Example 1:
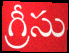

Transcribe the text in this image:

గ్రీసు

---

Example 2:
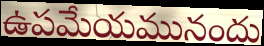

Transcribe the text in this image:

ఉపమేయమునందు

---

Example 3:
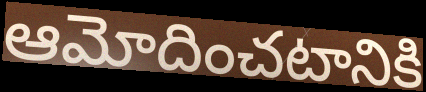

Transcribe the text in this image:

ఆమోదించటానికి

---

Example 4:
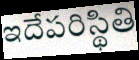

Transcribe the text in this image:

ఇదేపరిస్థితి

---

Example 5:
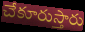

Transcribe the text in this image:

చేకూరుస్తారు